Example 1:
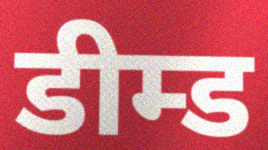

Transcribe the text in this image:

डीम्ड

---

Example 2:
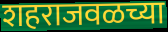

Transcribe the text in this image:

शहराजवळच्या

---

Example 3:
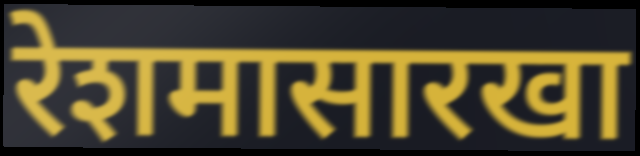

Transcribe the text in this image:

रेशमासारखा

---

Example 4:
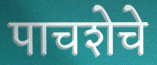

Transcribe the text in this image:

पाचशेचे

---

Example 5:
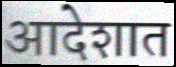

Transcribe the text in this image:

आदेशात